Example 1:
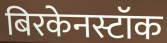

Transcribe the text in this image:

बिरकेनस्टॉक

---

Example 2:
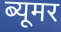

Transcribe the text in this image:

ब्यूमर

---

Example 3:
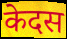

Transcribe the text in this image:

केदस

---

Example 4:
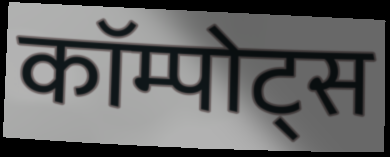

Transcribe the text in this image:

कॉम्पोट्स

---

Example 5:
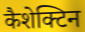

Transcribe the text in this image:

कैशेक्टिन